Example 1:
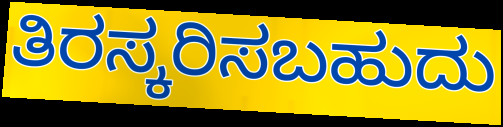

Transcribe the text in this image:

ತಿರಸ್ಕರಿಸಬಹುದು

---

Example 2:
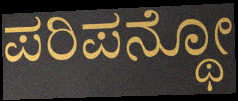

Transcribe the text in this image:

ಪರಿಪನ್ಥೋ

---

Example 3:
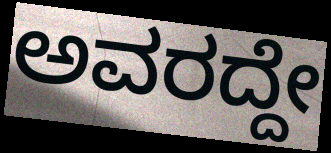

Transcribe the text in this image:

ಅವರದ್ದೇ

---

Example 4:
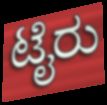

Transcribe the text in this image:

ಟೈರು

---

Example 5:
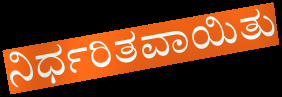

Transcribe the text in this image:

ನಿರ್ಧರಿತವಾಯಿತು